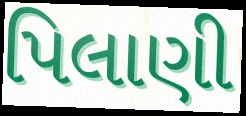
પિલાણી